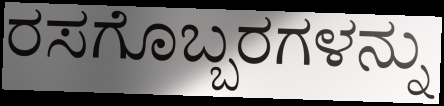
ರಸಗೊಬ್ಬರಗಳನ್ನು